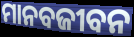
ମାନବଜୀବନ